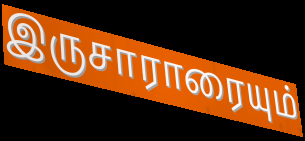
இருசாராரையும்